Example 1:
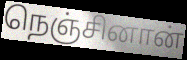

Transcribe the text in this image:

நெஞ்சினான்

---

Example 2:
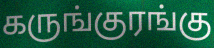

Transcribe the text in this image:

கருங்குரங்கு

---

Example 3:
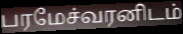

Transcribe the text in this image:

பரமேச்வரனிடம்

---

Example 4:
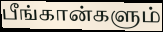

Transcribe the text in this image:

பீங்கான்களும்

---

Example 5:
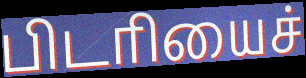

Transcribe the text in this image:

பிடரியைச்